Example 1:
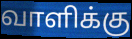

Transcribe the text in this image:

வாளிக்கு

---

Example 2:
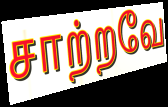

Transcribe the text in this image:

சாற்றவே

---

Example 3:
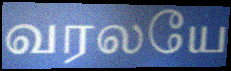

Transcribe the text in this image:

வரலயே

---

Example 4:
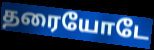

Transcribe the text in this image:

தரையோடே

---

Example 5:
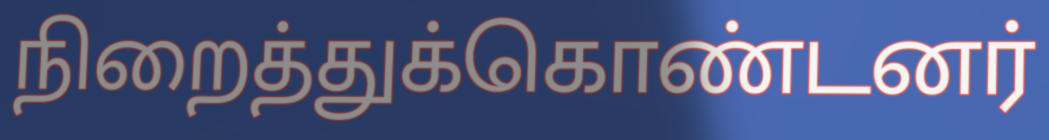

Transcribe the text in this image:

நிறைத்துக்கொண்டனர்